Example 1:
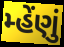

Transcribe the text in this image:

મ્હેંણું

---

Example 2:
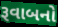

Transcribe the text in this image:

રૂવાબનો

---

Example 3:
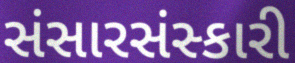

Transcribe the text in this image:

સંસારસંસ્કારી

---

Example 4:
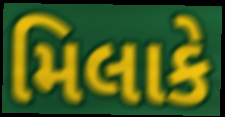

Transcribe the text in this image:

મિલાકે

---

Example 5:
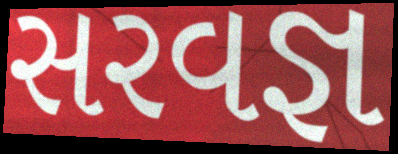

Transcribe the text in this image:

સરવજ્ઞ